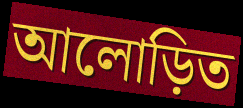
আলোড়িত